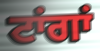
ਟਾਂਗਾਂ